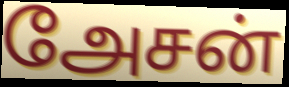
அேசன்